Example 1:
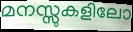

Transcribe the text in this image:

മനസ്സുകളിലോ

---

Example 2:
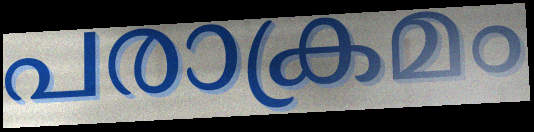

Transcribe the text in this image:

പരാക്രമം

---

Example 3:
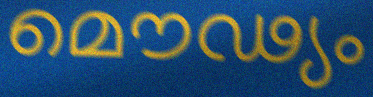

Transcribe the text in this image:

മൌഢ്യം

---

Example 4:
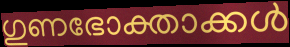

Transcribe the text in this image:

ഗുണഭോക്താക്കൾ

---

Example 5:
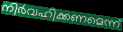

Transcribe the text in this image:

നിർവഹിക്കണമെന്ന്